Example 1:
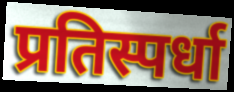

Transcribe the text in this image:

प्रतिस्पर्धा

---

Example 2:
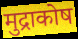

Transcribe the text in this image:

मुद्राकोष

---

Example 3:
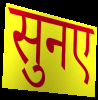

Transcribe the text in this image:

सुनए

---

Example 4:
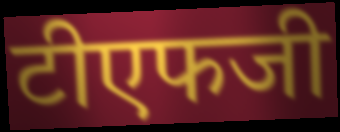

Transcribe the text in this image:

टीएफजी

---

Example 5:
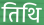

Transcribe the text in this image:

तिथि